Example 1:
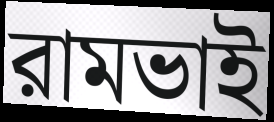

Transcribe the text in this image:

রামভাই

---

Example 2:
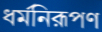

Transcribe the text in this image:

ধর্মনিরূপণ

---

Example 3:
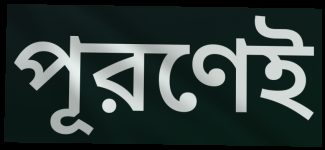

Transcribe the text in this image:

পূরণেই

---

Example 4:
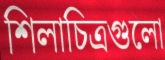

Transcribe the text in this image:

শিলাচিত্রগুলো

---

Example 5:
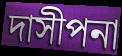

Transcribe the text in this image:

দাসীপনা